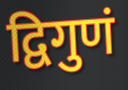
द्विगुणं